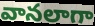
వానలాగా